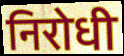
निरोधी